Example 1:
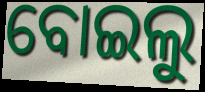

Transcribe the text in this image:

ବୋଇଲୁ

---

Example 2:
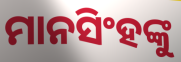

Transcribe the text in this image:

ମାନସିଂହଙ୍କୁ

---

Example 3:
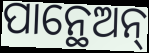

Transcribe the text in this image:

ପାନ୍ଥେଅନ୍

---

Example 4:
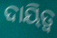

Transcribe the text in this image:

ଦାୟିତ୍ବ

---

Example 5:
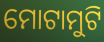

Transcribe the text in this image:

ମୋଟାମୁଟି